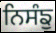
ਨਿਸੰਙੁ